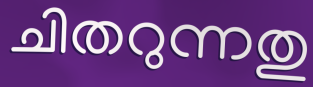
ചിതറുന്നതു